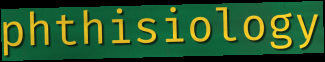
phthisiology